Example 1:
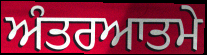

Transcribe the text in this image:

ਅੰਤਰਆਤਮੇ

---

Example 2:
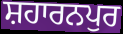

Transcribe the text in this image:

ਸ਼ਹਾਰਨਪੁਰ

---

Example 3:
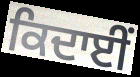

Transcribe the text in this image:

ਕਿਦਾਈਂ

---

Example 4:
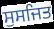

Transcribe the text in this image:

ਸੁਸਜਿਤ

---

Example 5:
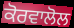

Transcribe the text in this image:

ਕੋਰਵਾਲੋਲ